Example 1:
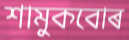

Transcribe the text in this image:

শামুকবোৰ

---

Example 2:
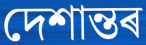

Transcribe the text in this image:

দেশান্তৰ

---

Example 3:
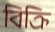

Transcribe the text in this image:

বিক্ৰি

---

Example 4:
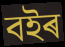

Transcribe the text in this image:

বইৰ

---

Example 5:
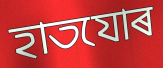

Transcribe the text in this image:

হাতযোৰ